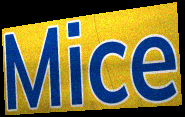
Mice